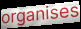
organises